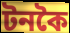
টনকৈ